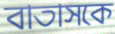
বাতাসকে